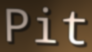
Pit